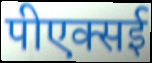
पीएक्सई